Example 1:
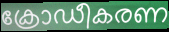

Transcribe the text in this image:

ക്രോഡീകരണ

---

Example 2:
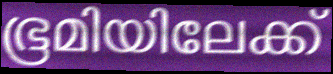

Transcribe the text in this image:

ഭൂമിയിലേക്ക്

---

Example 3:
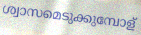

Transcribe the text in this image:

ശ്വാസമെടുക്കുമ്പോള്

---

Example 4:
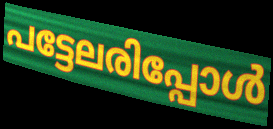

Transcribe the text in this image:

പട്ടേലരിപ്പോൾ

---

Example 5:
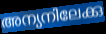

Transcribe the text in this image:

അന്യനിലേക്കു